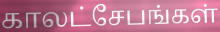
காலட்சேபங்கள்